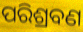
ପରିଶ୍ରବଣ